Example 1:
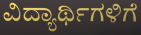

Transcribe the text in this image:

ವಿದ್ಯಾರ್ಥಿಗಳಿಗೆ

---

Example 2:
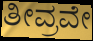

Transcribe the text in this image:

ತೀವ್ರವೇ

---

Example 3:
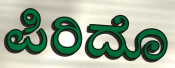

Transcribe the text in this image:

ಪಿರಿದೊ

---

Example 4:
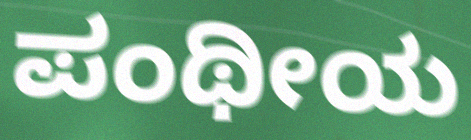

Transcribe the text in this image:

ಪಂಥೀಯ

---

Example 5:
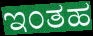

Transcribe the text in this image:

ಇಂತಹ